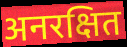
अनरक्षित